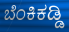
ಬೆಂಕಿಕಡ್ಡಿ